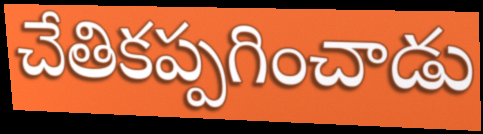
చేతికప్పగించాడు